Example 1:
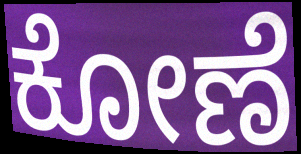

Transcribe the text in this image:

ಕೋಣೆ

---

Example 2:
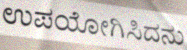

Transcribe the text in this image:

ಉಪಯೋಗಿಸಿದನು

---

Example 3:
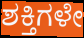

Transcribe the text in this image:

ಶಕ್ತಿಗಳೇ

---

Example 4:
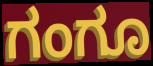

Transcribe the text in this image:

ಗಂಗೂ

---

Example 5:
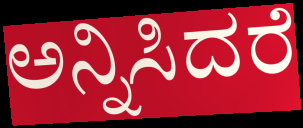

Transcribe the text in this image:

ಅನ್ನಿಸಿದರೆ